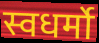
स्वधर्मो